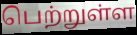
பெற்றுள்ள